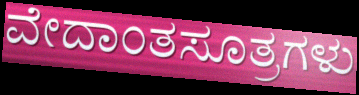
ವೇದಾಂತಸೂತ್ರಗಳು